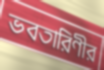
ভবতারিণীর